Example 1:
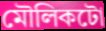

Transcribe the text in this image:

মৌলিকটো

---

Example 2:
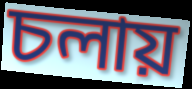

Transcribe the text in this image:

চলায়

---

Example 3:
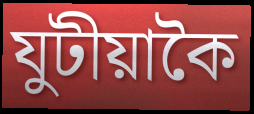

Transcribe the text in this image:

যুটীয়াকৈ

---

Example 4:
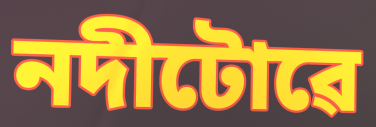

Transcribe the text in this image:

নদীটোৱে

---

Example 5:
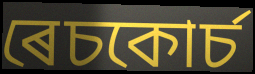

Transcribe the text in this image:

ৰেচকোৰ্চ